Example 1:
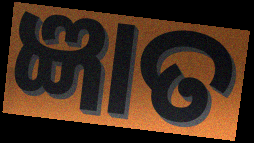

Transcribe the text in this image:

ଜ୍ଞାତ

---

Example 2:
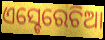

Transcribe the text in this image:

ଏସ୍ଚେରେଚିଆ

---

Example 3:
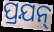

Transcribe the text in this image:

ପ୍ରଯନ୍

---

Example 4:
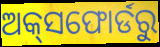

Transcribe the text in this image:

ଅକ୍‌ସଫୋର୍ଡରୁ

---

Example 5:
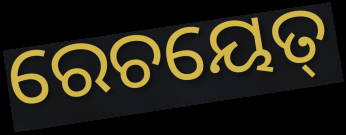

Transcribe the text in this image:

ରେଚୟେତ୍